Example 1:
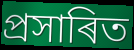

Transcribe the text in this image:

প্ৰসাৰিত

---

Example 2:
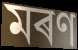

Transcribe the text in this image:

মৰণ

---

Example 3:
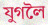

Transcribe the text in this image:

যুগলৈ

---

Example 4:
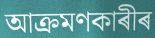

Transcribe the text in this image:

আক্ৰমণকাৰীৰ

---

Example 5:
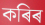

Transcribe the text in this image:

কৰিৰ